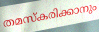
തമസ്കരിക്കാനും